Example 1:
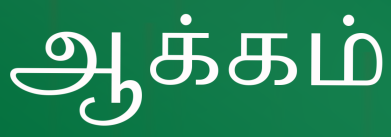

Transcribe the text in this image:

ஆக்கம்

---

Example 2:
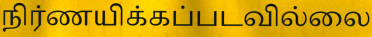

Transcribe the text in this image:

நிர்ணயிக்கப்படவில்லை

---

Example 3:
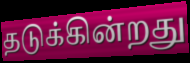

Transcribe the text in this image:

தடுக்கின்றது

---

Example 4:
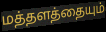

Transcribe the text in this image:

மத்தளத்தையும்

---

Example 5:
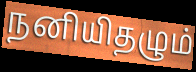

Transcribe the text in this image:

நனியிதழும்